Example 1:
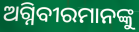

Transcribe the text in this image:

ଅଗ୍ନିବୀରମାନଙ୍କୁ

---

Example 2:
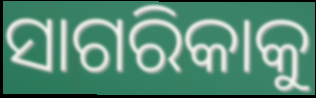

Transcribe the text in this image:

ସାଗରିକାକୁ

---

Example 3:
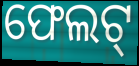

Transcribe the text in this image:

ଫେଲଟ୍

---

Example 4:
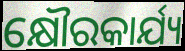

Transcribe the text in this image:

କ୍ଷୌରକାର୍ଯ୍ୟ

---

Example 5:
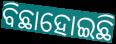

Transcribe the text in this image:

ବିଛାହୋଇଛି